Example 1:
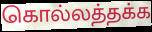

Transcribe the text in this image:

கொல்லத்தக்க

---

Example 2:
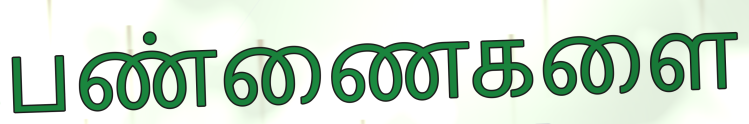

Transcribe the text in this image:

பண்ணைகளை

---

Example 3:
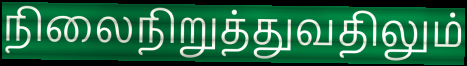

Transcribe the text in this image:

நிலைநிறுத்துவதிலும்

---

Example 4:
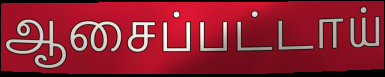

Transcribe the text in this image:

ஆசைப்பட்டாய்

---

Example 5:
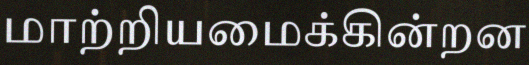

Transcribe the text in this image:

மாற்றியமைக்கின்றன